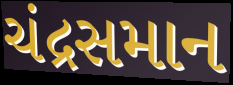
ચંદ્રસમાન